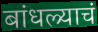
बांधल्याचं